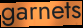
garnets